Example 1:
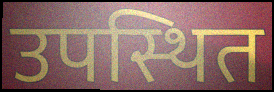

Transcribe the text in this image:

उपस्थित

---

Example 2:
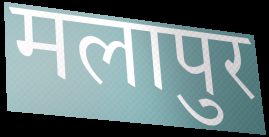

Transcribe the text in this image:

मलापुर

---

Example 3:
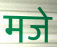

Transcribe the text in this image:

मजे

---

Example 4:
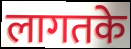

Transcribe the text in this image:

लागतके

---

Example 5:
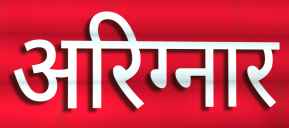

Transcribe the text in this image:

अरिग्नार